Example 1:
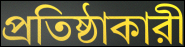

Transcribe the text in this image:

প্রতিষ্ঠাকারী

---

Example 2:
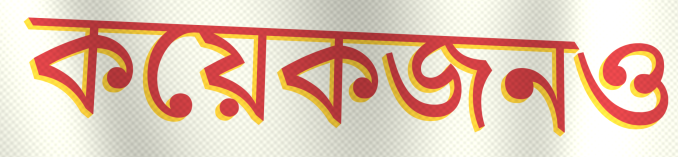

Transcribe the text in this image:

কয়েকজনও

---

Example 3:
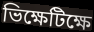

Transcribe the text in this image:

ভিক্ষেটিক্ষে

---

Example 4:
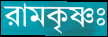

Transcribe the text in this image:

রামকৃষ্ণঃ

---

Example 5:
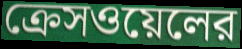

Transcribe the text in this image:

ক্রেসওয়েলের